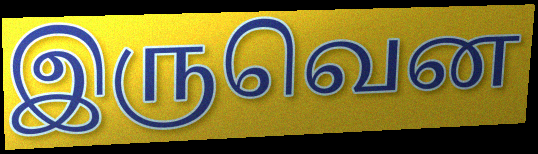
இருவென